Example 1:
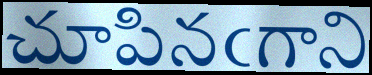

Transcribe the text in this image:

చూపినఁగాని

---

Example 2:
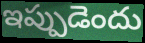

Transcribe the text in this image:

ఇప్పుడెందు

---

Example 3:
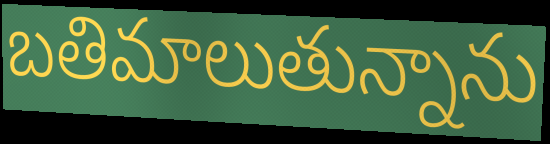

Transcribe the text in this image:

బతిమాలుతున్నాను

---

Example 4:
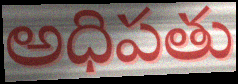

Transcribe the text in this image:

అధిపతు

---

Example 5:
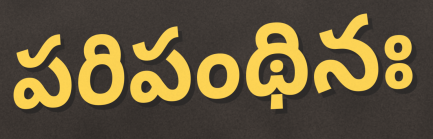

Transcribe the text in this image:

పరిపంథినః